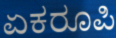
ಏಕರೂಪಿ